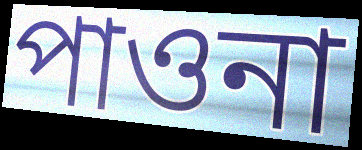
পাওনা